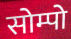
सोम्पो